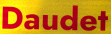
Daudet